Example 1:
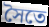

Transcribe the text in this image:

সৈতে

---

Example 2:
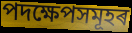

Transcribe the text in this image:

পদক্ষেপসমূহৰ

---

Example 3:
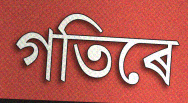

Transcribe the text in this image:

গতিৰে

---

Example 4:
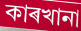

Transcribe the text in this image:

কাৰখানা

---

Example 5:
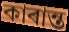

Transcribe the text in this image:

কাৰান্ত